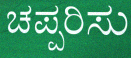
ಚಪ್ಪರಿಸು